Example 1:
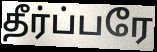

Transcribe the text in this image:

தீர்ப்பரே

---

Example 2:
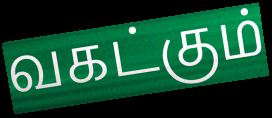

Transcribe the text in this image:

வகட்கும்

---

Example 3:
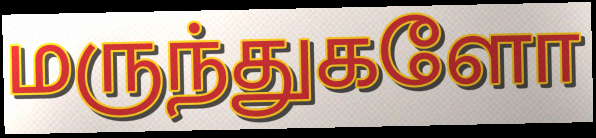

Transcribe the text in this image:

மருந்துகளோ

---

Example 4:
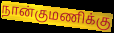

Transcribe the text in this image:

நான்குமணிக்கு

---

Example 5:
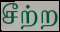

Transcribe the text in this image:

சீற்ற